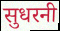
सुधरनी